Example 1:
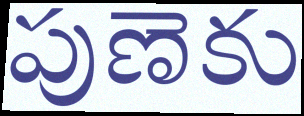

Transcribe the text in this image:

పుణెకు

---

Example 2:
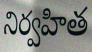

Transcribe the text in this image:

నిర్వహిత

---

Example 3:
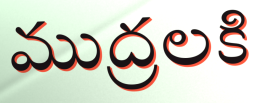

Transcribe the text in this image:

ముద్రలకి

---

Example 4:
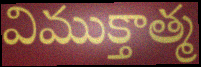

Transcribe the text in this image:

విముక్తాత్మ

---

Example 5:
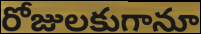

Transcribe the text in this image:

రోజులకుగానూ